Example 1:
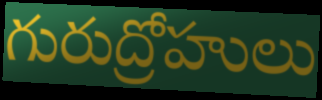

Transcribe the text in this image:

గురుద్రోహులు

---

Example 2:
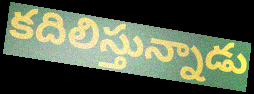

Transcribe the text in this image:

కదిలిస్తున్నాడు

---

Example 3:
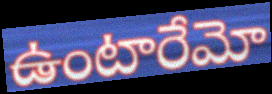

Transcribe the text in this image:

ఉంటారేమో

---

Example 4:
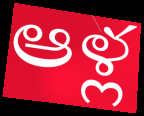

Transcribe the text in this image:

ఆళ్ల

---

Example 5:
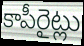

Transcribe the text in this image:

కాపీరైట్లు